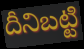
దీనిబట్టి